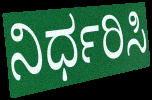
ನಿರ್ಧರಿಸಿ